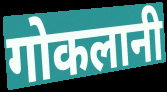
गोकलानी